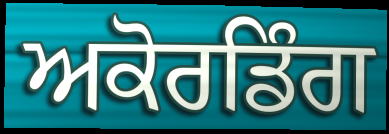
ਅਕੋਰਡਿੰਗ